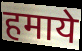
हमाये